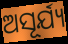
ଅସୂର୍ଯ୍ୟ